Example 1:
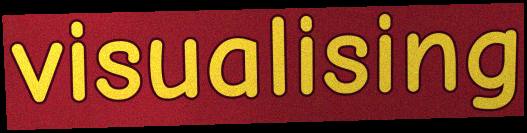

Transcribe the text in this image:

visualising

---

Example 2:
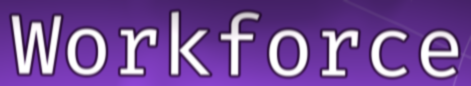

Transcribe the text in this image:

Workforce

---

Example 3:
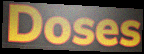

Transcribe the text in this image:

Doses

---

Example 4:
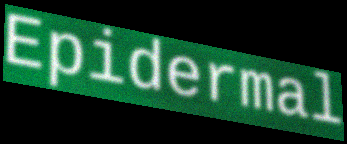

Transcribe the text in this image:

Epidermal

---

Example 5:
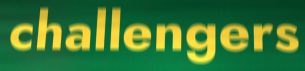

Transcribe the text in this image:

challengers